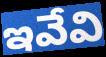
ఇవేవి